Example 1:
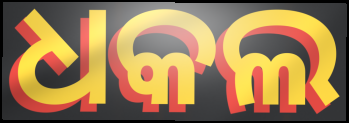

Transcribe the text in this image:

ଧକଲ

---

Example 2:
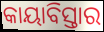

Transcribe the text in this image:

କାୟାବିସ୍ତାର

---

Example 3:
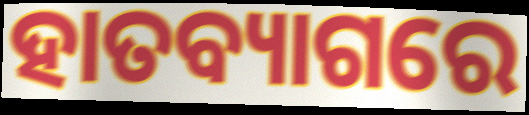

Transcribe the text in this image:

ହାତବ୍ୟାଗରେ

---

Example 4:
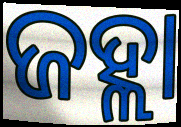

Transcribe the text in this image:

ଜହ୍ଲା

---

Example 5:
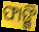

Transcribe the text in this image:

ଫାଙ୍ଗି